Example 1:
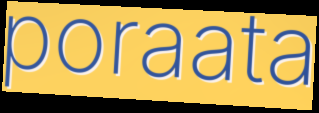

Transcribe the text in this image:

poraata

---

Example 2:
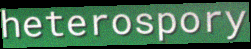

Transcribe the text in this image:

heterospory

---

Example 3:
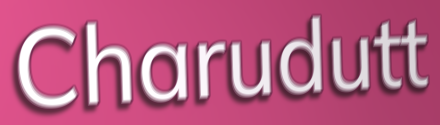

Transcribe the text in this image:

Charudutt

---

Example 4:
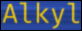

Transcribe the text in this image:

Alkyl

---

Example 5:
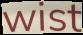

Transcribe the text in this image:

wist